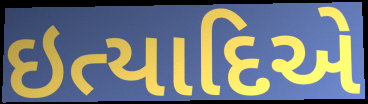
ઇત્યાદિએ